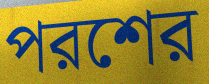
পরশের